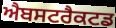
ਐਬਸਟਰੈਕਟਡ